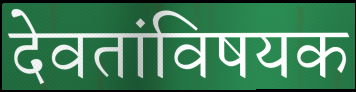
देवतांविषयक